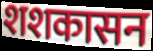
शशकासन